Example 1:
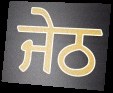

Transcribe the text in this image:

ਜੇਠ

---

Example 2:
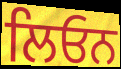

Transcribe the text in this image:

ਲਿਓਨ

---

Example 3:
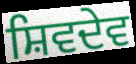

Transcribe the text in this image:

ਸ਼ਿਵਦੇਵ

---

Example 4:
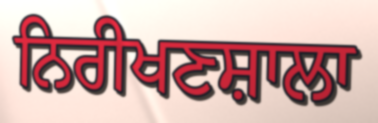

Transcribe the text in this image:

ਨਿਰੀਖਣਸ਼ਾਲਾ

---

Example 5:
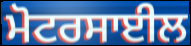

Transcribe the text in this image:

ਮੋਟਰਸਾਈਲ